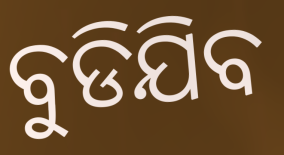
ବୁଡିଯିବ